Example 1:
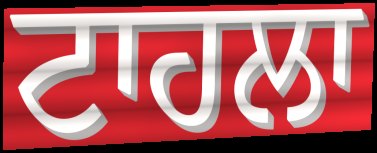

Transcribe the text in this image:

ਟਾਹਲਾ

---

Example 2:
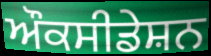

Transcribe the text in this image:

ਔਕਸੀਡੇਸ਼ਨ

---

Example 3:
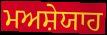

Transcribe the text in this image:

ਮਅਸ਼ੇਯਾਹ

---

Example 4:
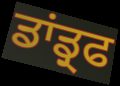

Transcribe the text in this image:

ਡਾਂਡ੍ਰਫ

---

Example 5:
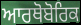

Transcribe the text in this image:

ਆਰਥੋਬੋਰਿਕ